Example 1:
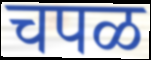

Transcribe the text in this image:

चपळ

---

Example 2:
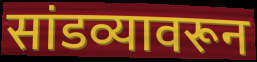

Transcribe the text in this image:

सांडव्यावरून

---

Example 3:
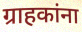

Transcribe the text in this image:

ग्राहकांना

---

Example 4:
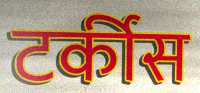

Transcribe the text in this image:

टर्कीस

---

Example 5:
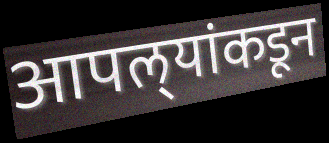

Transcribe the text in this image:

आपल्यांकडून